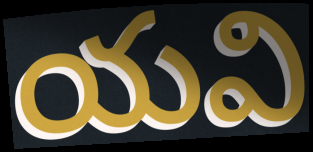
యవి